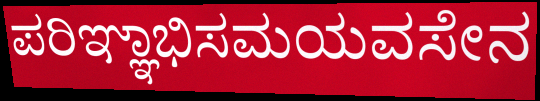
ಪರಿಞ್ಞಾಭಿಸಮಯವಸೇನ